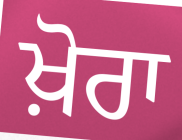
ਖ਼ੋਰਾ